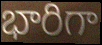
భారిగా